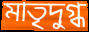
মাতৃদুগ্ধ